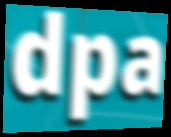
dpa